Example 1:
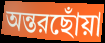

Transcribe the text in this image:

অন্তরছোঁয়া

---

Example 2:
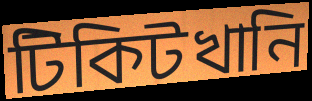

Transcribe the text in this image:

টিকিটখানি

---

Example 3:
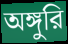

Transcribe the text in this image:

অঙ্গুরি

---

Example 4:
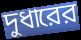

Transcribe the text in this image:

দুধারের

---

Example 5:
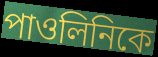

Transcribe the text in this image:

পাওলিনিকে